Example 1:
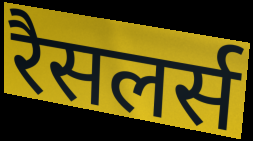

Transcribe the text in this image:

रैसलर्स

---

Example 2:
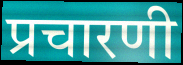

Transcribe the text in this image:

प्रचारणी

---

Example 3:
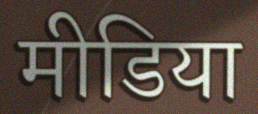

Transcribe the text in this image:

मीडिया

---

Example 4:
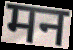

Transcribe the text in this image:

मन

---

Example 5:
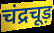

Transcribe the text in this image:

चंद्रचूड़